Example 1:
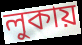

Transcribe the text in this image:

লুকায়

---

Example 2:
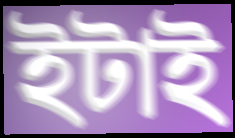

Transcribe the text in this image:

ইটাই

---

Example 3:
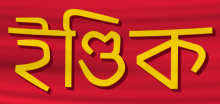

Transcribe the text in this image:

ইণ্ডিক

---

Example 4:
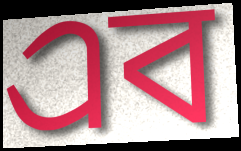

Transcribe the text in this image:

এব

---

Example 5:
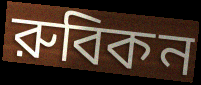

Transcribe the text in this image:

ৰুবিকন